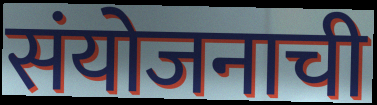
संयोजनाची